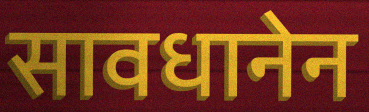
सावधानेन